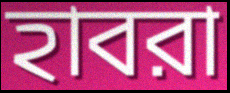
হাবরা